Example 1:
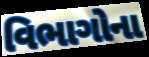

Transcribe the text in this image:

વિભાગોના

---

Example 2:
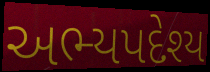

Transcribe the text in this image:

અભ્યપદેશ્ય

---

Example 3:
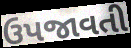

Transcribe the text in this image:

ઉપજાવતી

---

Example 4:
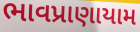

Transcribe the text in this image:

ભાવપ્રાણાયામ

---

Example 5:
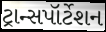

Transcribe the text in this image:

ટ્રાન્સપૉર્ટેશન